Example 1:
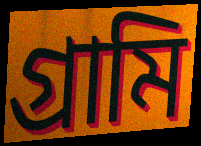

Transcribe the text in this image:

গ্রামি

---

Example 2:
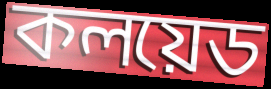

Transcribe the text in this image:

কলয়েড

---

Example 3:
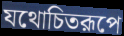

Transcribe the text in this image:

যথোচিতরূপে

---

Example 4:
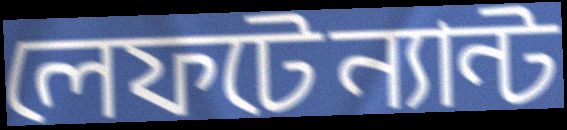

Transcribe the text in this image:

লেফটেন্যান্ট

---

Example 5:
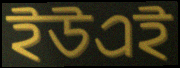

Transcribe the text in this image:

ইউএই